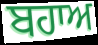
ਬਹਾਅ